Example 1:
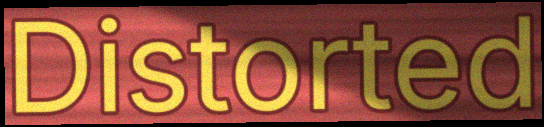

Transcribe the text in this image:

Distorted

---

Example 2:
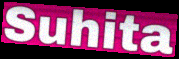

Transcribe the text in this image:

Suhita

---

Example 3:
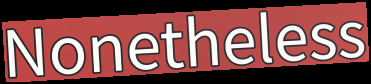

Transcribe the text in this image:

Nonetheless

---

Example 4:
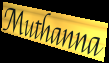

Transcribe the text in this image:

Muthanna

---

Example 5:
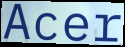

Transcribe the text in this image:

Acer